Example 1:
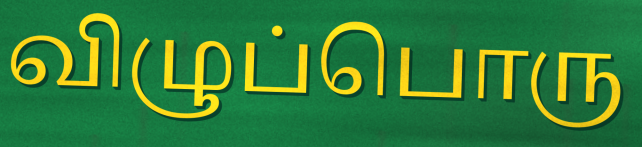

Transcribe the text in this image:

விழுப்பொரு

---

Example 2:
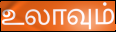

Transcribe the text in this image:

உலாவும்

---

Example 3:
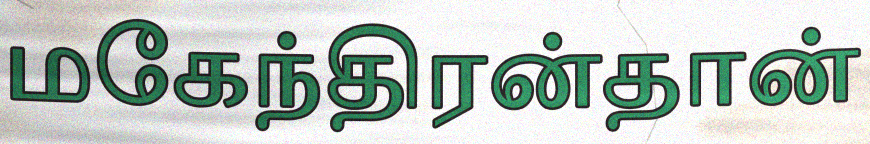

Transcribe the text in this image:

மகேந்திரன்தான்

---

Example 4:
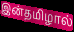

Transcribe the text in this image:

இன்தமிழால்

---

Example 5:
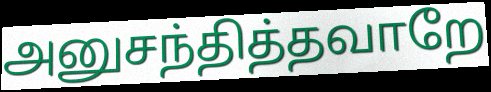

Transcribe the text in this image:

அனுசந்தித்தவாறே